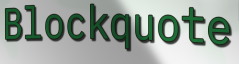
Blockquote